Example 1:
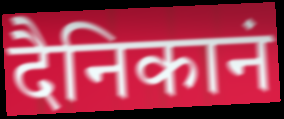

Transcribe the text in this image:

दैनिकानं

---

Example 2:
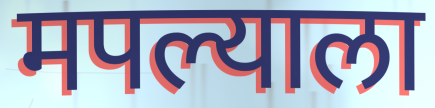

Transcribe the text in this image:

मपल्याला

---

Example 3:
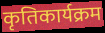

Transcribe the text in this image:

कृतिकार्यक्रम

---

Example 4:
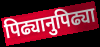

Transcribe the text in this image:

पिढ्यानुपिढ्या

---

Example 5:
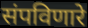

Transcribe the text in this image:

संपविणारे